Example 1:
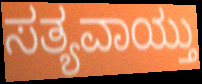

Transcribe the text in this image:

ಸತ್ಯವಾಯ್ತು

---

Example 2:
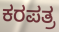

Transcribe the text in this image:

ಕರಪತ್ರ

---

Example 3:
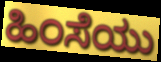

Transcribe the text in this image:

ಹಿಂಸೆಯು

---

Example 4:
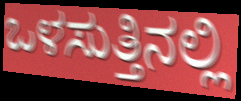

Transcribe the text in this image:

ಒಳಸುತ್ತಿನಲ್ಲಿ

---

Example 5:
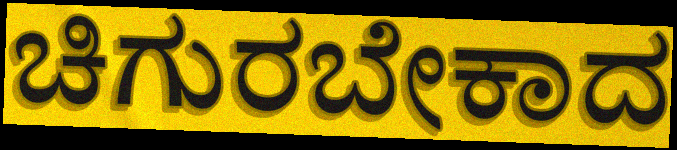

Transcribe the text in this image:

ಚಿಗುರಬೇಕಾದ